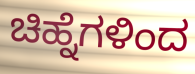
ಚಿಹ್ನೆಗಳಿಂದ